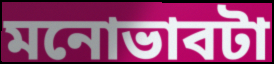
মনোভাবটা